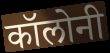
कॉलोनी